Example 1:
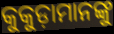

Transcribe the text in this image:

କୁକୁଡ଼ାମାନଙ୍କୁ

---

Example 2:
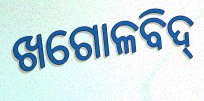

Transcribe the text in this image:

ଖଗୋଳବିଦ୍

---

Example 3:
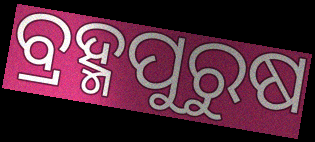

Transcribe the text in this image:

ବ୍ରହ୍ମପୁରୁଷ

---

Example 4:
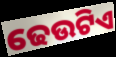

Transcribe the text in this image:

ଢେଉଟିଏ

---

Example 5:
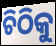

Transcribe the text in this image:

ଚିଠିକୁ